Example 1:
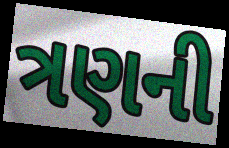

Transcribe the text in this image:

ત્રણની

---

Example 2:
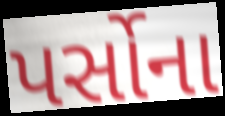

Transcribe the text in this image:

પર્સોના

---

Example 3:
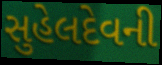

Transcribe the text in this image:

સુહેલદેવની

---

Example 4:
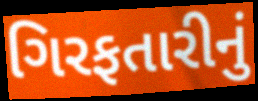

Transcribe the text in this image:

ગિરફતારીનું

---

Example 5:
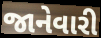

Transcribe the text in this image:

જાનેવારી